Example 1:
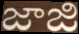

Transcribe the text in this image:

జాజి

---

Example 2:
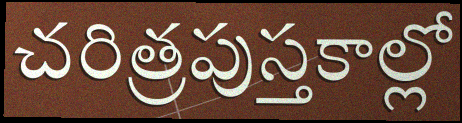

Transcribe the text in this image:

చరిత్రపుస్తకాల్లో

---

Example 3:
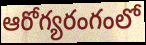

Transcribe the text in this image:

ఆరోగ్యరంగంలో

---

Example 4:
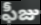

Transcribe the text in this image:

ఫీజు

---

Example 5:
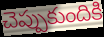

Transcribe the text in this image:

చెప్పుకుందికి